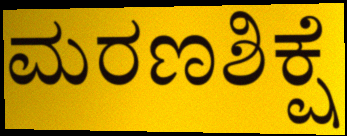
ಮರಣಶಿಕ್ಷೆ